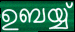
ഉബയ്യ്